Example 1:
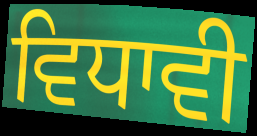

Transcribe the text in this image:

ਵਿਧਾਵੀ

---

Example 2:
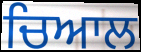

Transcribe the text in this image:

ਚਿਆਲ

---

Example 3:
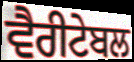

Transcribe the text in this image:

ਵੈਰੀਟੇਬਲ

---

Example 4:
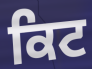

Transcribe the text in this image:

ਕਿਟ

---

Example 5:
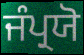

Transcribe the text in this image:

ਜੰਪ੍ਰਯੋ